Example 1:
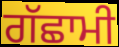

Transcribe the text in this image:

ਗੱਛਾਮੀ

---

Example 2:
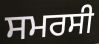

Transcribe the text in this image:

ਸਮਰਸੀ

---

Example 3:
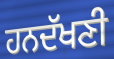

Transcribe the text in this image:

ਹਨਦੱਖਣੀ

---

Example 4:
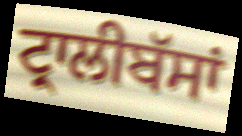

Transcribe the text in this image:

ਟ੍ਰਾਲੀਬੱਸਾਂ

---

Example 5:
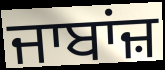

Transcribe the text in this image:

ਜਾਬਾਂਜ਼